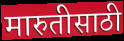
मारुतीसाठी